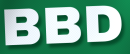
BBD